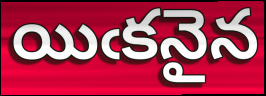
యిఁకనైన